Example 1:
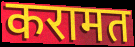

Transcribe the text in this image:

करामत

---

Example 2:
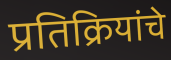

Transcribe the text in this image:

प्रतिक्रियांचे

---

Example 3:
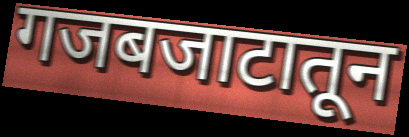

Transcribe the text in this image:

गजबजाटातून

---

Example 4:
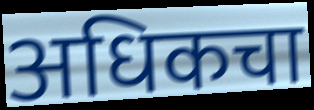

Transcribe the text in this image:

अधिकचा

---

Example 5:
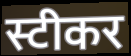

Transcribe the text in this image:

स्टीकर